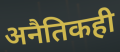
अनैतिकही